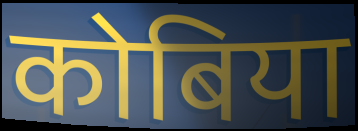
कोबिया